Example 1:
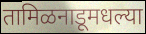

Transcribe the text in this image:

तामिळनाडूमधल्या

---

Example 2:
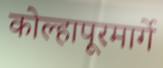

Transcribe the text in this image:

कोल्हापूरमार्गे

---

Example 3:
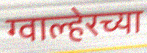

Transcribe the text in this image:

ग्वाल्हेरच्या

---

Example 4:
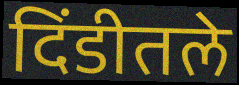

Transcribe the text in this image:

दिंडीतले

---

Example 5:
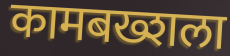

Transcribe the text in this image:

कामबख्शला